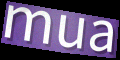
mua